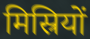
मिस्रियों